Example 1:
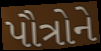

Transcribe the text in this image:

પૌત્રોને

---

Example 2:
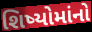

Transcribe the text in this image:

શિષ્યોમાંનો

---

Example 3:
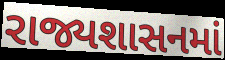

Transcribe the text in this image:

રાજ્યશાસનમાં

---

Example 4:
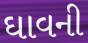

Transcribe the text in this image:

ઘાવની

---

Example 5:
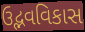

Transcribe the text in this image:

ઉદ્ભવવિકાસ